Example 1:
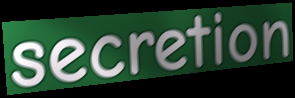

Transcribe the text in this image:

secretion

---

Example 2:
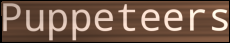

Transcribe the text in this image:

Puppeteers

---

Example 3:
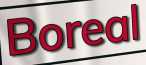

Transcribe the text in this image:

Boreal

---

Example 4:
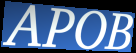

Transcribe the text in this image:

APOB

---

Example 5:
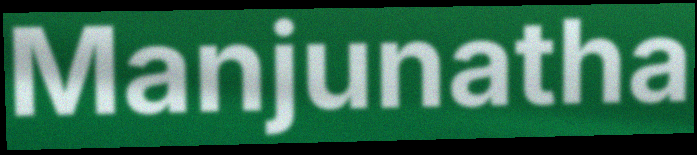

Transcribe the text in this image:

Manjunatha